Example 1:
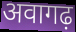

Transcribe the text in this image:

अवागढ़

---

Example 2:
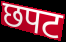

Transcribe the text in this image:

छपट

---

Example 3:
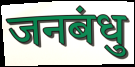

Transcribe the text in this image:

जनबंधु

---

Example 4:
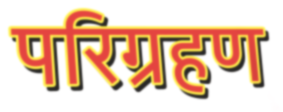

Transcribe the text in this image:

परिग्रहण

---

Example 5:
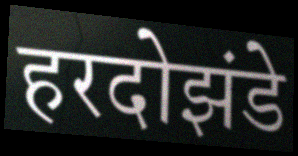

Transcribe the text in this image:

हरदोझंडे